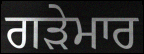
ਗੜੇਮਾਰ